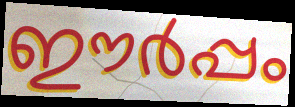
ഈർപ്പം